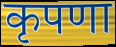
कृपणा